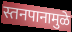
स्तनपानामुळे